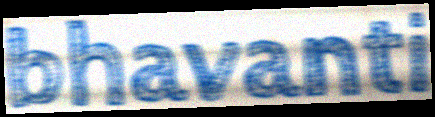
bhavanti